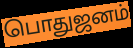
பொதுஜனம்